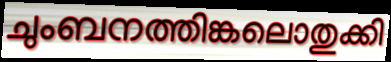
ചുംബനത്തിങ്കലൊതുക്കി